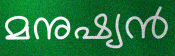
മനുഷ്യൻ